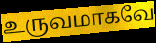
உருவமாகவே